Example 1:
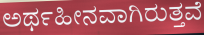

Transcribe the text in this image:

ಅರ್ಥಹೀನವಾಗಿರುತ್ತವೆ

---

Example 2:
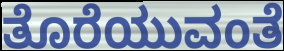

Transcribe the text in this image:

ತೊರೆಯುವಂತೆ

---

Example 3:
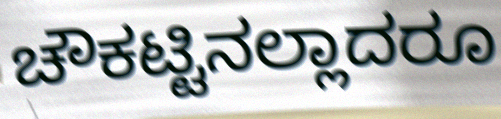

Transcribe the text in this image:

ಚೌಕಟ್ಟಿನಲ್ಲಾದರೂ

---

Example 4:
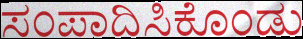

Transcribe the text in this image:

ಸಂಪಾದಿಸಿಕೊಂಡು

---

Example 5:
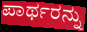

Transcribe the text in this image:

ಪಾರ್ಥರನ್ನು